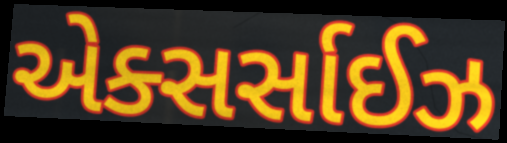
એક્સર્સાઈઝ